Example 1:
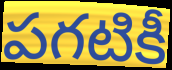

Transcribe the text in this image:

పగటికీ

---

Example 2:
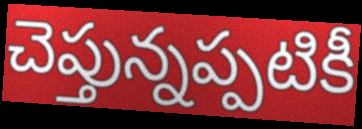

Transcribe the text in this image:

చెప్తున్నప్పటికీ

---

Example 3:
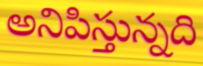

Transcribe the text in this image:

అనిపిస్తున్నది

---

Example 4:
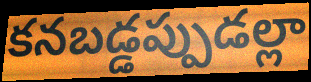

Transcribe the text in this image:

కనబడ్డప్పుడల్లా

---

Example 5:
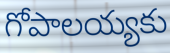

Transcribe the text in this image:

గోపాలయ్యకు